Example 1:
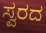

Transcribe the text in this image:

ಸ್ವರದ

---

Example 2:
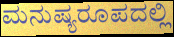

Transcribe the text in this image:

ಮನುಷ್ಯರೂಪದಲ್ಲಿ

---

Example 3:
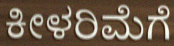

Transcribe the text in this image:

ಕೀಳರಿಮೆಗೆ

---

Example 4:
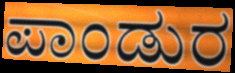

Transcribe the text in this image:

ಪಾಂಡುರ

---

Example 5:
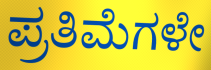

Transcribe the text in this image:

ಪ್ರತಿಮೆಗಳೇ